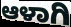
ಆಳಾಗಿ